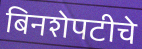
बिनशेपटीचे